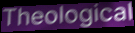
Theological